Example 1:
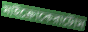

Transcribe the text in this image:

মাইক্রোকেরাটোম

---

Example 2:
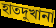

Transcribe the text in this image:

হাতদুখানা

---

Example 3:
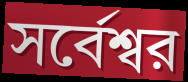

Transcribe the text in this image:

সর্বেশ্বর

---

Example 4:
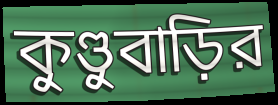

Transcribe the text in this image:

কুণ্ডুবাড়ির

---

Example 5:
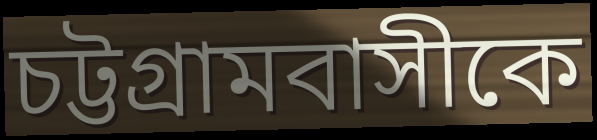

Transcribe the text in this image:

চট্টগ্রামবাসীকে